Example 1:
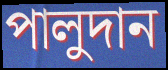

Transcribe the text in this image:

পালুদান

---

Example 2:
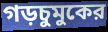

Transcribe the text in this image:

গড়চুমুকের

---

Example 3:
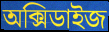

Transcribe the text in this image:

অক্সিডাইজ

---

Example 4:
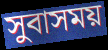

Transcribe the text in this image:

সুবাসময়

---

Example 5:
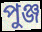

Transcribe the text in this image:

পুঞ্জ